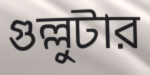
গুল্লুটার